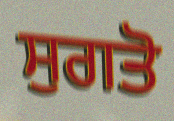
ਸੁਗਤੋ